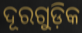
ଦୂରଗୁଡ଼ିକ